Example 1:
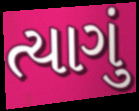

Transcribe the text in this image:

ત્યાગું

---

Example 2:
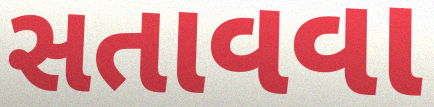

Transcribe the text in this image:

સતાવવા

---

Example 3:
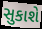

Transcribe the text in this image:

સુકાશે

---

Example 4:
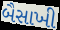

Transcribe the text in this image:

બૈસાખી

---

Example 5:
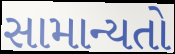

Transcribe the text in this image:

સામાન્યતો